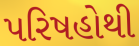
પરિષહોથી